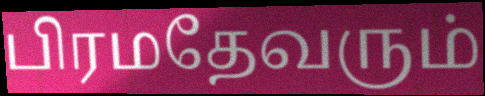
பிரமதேவரும்